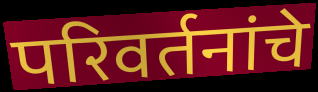
परिवर्तनांचे